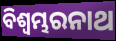
ବିଶ୍ୱମ୍ଭରନାଥ